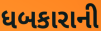
ધબકારાની